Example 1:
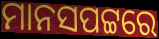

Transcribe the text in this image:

ମାନସପଟ୍ଟରେ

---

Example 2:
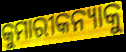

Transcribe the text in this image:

କୁମାରୀକନ୍ୟାକୁ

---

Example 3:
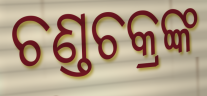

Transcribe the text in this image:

ଚଣ୍ଡଚକ୍ରଙ୍କ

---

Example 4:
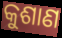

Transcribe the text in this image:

କୁଶାଣ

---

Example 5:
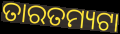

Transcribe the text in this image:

ତାରତମ୍ୟଟା